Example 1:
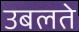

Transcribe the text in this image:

उबलते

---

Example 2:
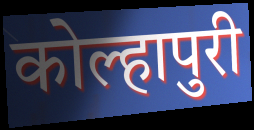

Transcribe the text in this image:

कोल्हापुरी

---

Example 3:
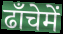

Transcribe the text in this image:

ढाँचेमें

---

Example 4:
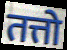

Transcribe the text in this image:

तत्तो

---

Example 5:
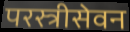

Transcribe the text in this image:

परस्त्रीसेवन